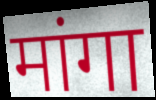
मांगा